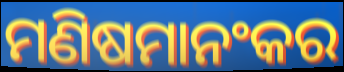
ମଣିଷମାନଂକର